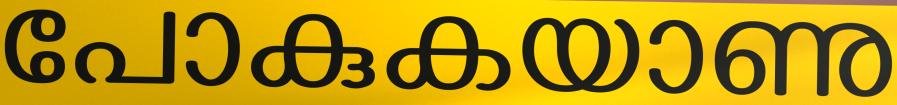
പോകുകയാണു